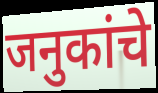
जनुकांचे